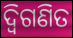
ଦ୍ୱିଗଣିତ